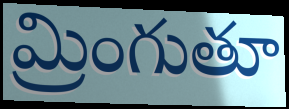
మ్రింగుతూ